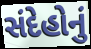
સંદેહોનું